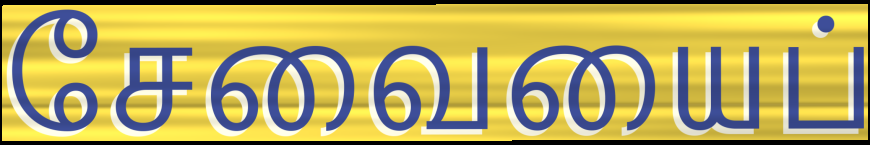
சேவையைப்